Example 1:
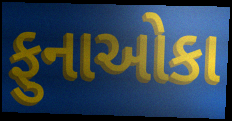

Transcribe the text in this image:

ફુનાઓકા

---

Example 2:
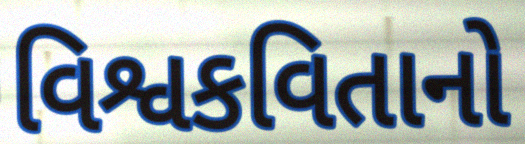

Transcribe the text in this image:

વિશ્વકવિતાનો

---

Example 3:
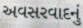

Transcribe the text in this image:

અવસરવાદનું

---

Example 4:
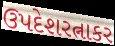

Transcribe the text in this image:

ઉપદેશરત્નાકર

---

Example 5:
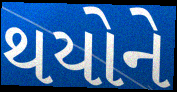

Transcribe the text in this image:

થયોને